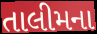
તાલીમના